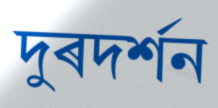
দুৰদৰ্শন